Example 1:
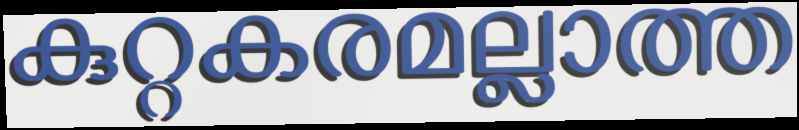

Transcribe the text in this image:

കുറ്റകരമല്ലാത്ത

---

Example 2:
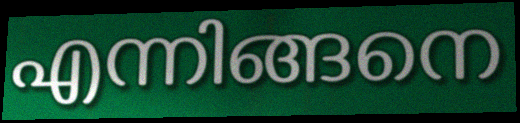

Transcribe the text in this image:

എന്നിങ്ങനെ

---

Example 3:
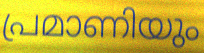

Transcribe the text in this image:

പ്രമാണിയും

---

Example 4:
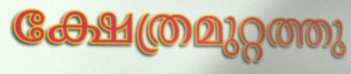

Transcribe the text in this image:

ക്ഷേത്രമുറ്റത്തു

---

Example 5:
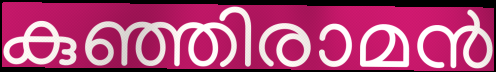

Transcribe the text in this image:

കുഞ്ഞിരാമൻ